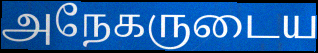
அநேகருடைய